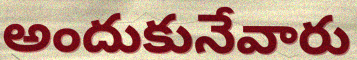
అందుకునేవారు